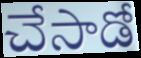
చేసాడో